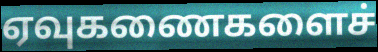
ஏவுகணைகளைச்